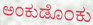
ಅಂಕುಡೊಂಕು